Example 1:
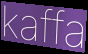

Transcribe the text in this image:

kaffa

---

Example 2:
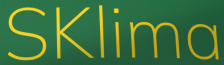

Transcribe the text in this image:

SKlima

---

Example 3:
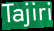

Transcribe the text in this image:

Tajiri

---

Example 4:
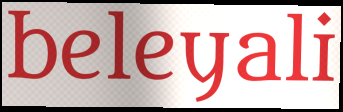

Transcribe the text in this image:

beleyali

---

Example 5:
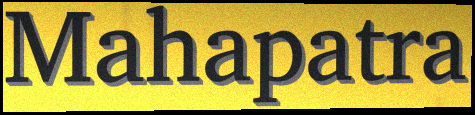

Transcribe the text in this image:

Mahapatra